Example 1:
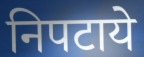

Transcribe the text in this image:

निपटाये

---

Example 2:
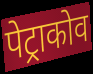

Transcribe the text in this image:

पेट्राकोव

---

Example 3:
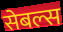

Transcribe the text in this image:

सेबल्स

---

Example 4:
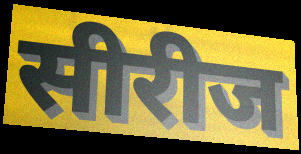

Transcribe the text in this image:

सीरीज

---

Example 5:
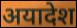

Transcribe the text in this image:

अयादेश